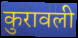
कुरावली